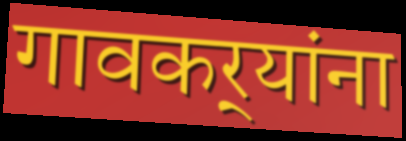
गावकर्यांना